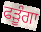
ਫੜੂੰਗਾ